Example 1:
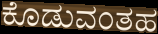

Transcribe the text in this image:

ಕೊಡುವಂತಹ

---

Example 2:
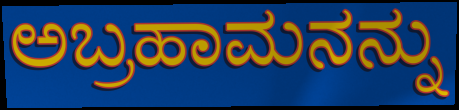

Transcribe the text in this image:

ಅಬ್ರಹಾಮನನ್ನು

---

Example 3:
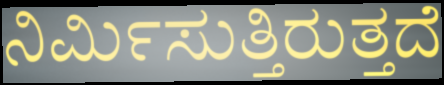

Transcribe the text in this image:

ನಿರ್ಮಿಸುತ್ತಿರುತ್ತದೆ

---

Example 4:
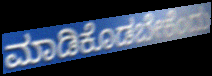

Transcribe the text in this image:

ಮಾಡಿಕೊಡಬೇಕೆಂದು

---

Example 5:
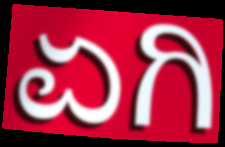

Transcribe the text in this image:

ಏಗಿ